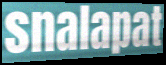
snalapat